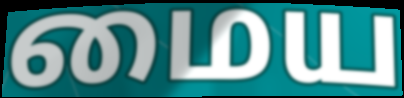
மைய